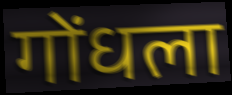
गोंधला